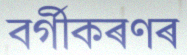
বৰ্গীকৰণৰ